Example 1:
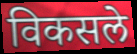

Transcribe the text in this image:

विकसले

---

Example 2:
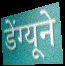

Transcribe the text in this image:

डेंग्यूने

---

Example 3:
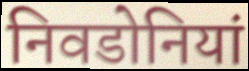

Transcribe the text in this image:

निवडोनियां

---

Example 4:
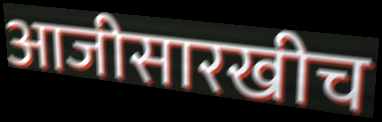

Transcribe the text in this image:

आजीसारखीच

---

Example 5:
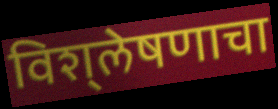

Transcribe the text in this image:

विश्लेषणाचा